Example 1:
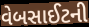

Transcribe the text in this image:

વેબસાઈટની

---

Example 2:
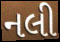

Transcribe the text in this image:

નલી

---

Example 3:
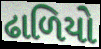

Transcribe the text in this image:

ઢાળિયો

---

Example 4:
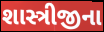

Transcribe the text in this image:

શાસ્ત્રીજીના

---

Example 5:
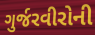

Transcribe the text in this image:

ગુર્જરવીરોની